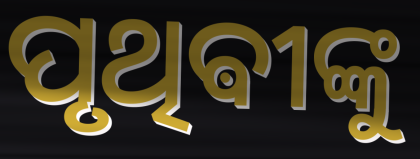
ପୃଥିଵୀଙ୍କୁ